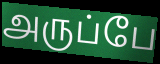
அருப்பே